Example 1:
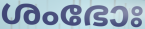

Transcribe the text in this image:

ശംഭോഃ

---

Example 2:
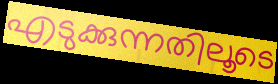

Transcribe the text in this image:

എടുക്കുന്നതിലൂടെ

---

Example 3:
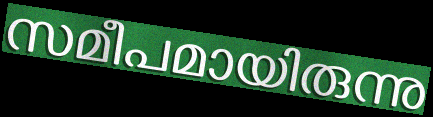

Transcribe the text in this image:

സമീപമായിരുന്നു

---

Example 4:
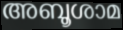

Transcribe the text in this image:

അബൂശാമ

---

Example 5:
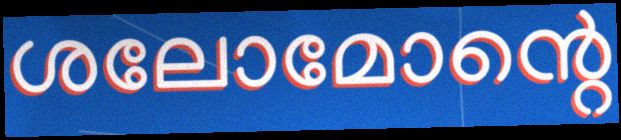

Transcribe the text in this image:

ശലോമോന്റെ